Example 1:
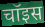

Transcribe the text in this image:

चॉइस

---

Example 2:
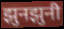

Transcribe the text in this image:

झुनझुनी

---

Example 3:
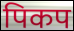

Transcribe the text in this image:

पिकप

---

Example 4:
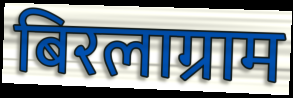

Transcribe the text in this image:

बिरलाग्राम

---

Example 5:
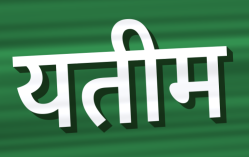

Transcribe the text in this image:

यतीम